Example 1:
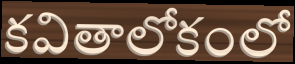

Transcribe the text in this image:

కవితాలోకంలో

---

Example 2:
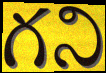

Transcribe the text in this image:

గని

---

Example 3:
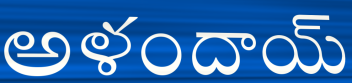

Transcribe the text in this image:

అళందాయ్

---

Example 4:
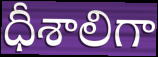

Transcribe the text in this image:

ధీశాలిగా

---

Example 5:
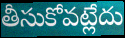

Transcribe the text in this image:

తీసుకోవట్లేదు